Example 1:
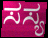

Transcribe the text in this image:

ಸಸ್ಯ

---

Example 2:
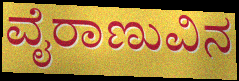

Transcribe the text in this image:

ವೈರಾಣುವಿನ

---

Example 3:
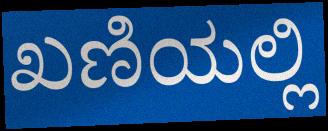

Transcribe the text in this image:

ಖಣಿಯಲ್ಲಿ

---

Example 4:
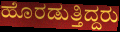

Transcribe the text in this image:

ಹೊರಡುತ್ತಿದ್ದರು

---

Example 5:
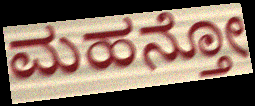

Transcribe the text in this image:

ಮಹನ್ತೋ